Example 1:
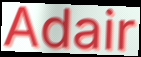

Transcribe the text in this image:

Adair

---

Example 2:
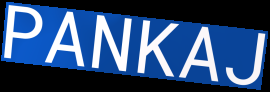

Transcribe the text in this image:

PANKAJ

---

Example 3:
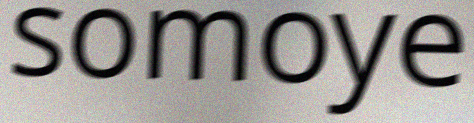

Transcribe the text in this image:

somoye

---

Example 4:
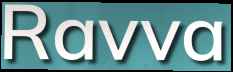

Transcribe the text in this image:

Ravva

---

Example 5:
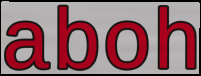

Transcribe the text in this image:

aboh